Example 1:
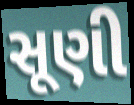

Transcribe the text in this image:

સૂણી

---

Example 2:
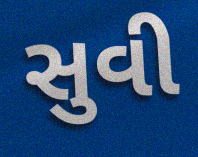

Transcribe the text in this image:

સુવી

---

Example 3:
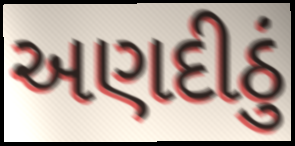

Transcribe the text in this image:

અણદીઠું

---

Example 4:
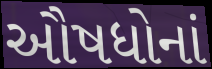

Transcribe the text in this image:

ઔષધોનાં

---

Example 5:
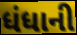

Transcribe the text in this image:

ધંધાની